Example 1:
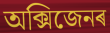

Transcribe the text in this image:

অক্সিজেনৰ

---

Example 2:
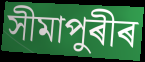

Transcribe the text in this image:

সীমাপুৰীৰ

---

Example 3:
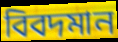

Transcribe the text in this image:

বিবদমান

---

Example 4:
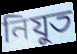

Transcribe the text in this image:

নিযুত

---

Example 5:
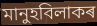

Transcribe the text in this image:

মানুহবিলাকৰ